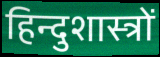
हिन्दुशास्त्रों